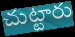
చుట్టారు